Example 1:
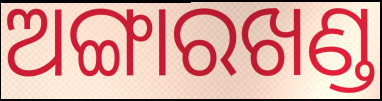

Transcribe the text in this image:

ଅଙ୍ଗାରଖଣ୍ଡ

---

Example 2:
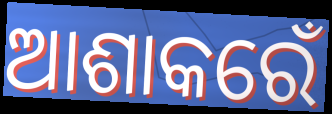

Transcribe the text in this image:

ଆଶାକରେଁ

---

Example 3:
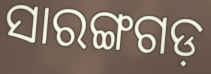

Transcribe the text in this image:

ସାରଙ୍ଗଗଡ଼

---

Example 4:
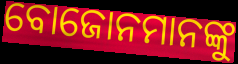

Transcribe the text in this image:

ବୋଜୋନମାନଙ୍କୁ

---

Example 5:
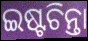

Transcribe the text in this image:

ଇଷ୍ଟଚିନ୍ତା